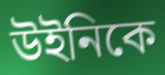
উইনিকে